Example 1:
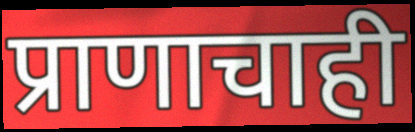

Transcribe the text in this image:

प्राणाचाही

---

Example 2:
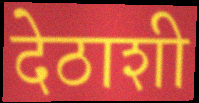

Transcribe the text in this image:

देठाशी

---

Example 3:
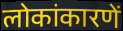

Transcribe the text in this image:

लोकांकारणें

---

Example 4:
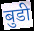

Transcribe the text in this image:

बुडी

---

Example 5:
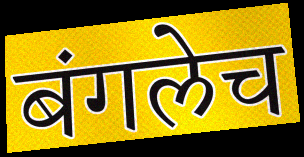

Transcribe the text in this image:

बंगलेच